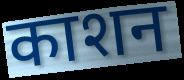
काशन